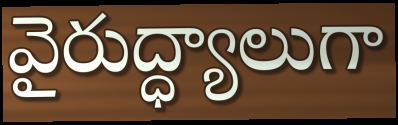
వైరుద్ధ్యాలుగా